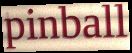
pinball